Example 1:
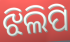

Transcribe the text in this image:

ଝିଲିପି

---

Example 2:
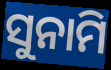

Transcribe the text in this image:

ସୁନାମି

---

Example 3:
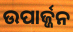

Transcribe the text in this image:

ଉପାର୍ଜ୍ଜନ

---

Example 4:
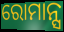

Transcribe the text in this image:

ରୋମାନ୍ସ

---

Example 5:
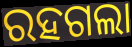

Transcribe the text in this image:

ରହଗଲା